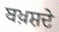
ਬਖ਼ਸ਼ਦੇ